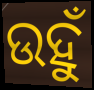
ଉହୁଁ